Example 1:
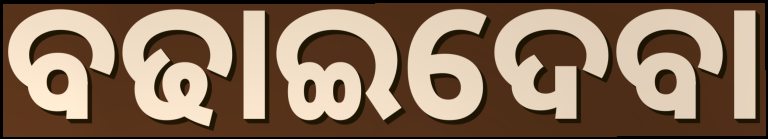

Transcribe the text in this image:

ବଢାଇଦେବା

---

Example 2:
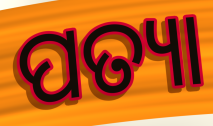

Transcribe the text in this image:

ପତ୍ୟା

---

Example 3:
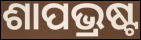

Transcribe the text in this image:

ଶାପଭ୍ରଷ୍ଟ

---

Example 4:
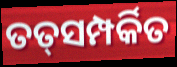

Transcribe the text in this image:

ତତ୍‌ସମ୍ପର୍କିତ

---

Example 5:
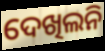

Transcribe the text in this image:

ଦେଖିଲନି